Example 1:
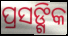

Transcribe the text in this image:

ପ୍ରସଙ୍ଗିକ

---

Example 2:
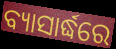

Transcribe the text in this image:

ବ୍ୟାସାର୍ଦ୍ଧରେ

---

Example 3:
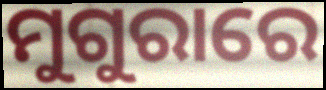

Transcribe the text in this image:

ମୁଗୁରାରେ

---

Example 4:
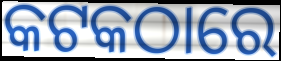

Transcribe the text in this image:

କଟକଠାରେ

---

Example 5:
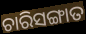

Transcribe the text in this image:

ଚାରିସଙ୍ଗାତ